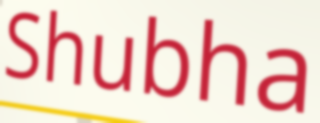
Shubha